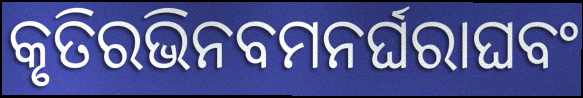
କୃତିରଭିନବମନର୍ଘରାଘବଂ